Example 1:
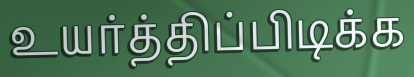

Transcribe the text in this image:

உயர்த்திப்பிடிக்க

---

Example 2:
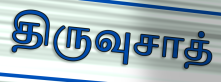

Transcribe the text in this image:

திருவுசாத்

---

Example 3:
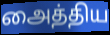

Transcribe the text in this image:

அைத்திய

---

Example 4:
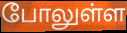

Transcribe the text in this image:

போலுள்ள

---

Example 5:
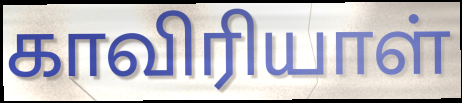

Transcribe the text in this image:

காவிரியாள்